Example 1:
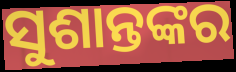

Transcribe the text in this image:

ସୁଶାନ୍ତଙ୍କର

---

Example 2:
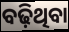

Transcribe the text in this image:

ବଢ଼ିଥିବା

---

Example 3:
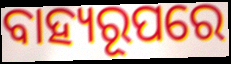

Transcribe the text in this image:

ବାହ୍ୟରୂପରେ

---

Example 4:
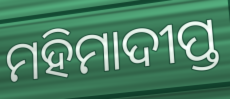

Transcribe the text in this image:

ମହିମାଦୀପ୍ତ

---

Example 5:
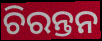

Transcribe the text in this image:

ଚିରନ୍ତନ